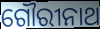
ଗୌରୀନାଥ